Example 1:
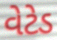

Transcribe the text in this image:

વેટેડ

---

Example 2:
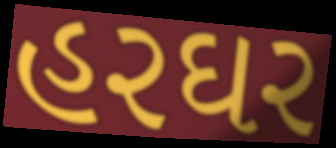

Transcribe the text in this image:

હરઘર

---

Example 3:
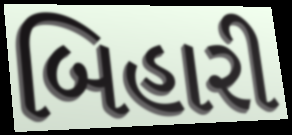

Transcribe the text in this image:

બિહારી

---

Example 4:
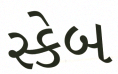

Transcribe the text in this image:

સ્કેબ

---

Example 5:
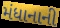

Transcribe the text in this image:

મંધાનાની